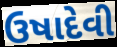
ઉષાદેવી